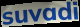
suvadi